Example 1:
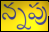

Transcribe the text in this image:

న్నపు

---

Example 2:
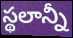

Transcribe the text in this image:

స్థలాన్నీ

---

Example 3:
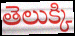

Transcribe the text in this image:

తెలుక్కి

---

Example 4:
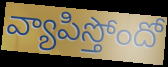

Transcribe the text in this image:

వ్యాపిస్తోందో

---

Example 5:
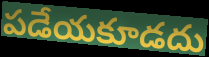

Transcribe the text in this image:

పడేయకూడదు